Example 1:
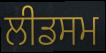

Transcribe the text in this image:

ਲੀਡਸਮ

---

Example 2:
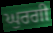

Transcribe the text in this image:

ਘੁਰਗੀ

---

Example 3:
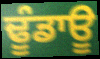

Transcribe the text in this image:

ਢੂੰਡਾਊ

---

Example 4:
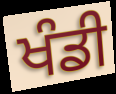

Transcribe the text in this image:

ਖੰਡੀ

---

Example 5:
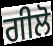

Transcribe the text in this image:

ਗੀਲੋ